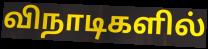
விநாடிகளில்